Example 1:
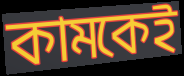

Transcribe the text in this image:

কামকেই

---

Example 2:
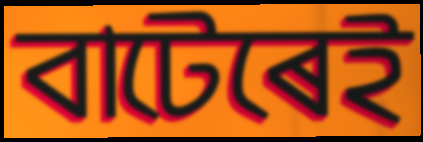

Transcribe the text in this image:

বাটেৰেই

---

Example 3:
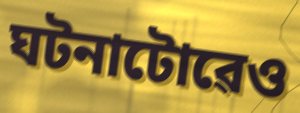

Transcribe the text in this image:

ঘটনাটোৱেও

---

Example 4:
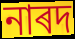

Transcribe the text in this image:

নাৰদ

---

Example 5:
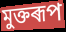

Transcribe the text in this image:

মুক্তৰূপ